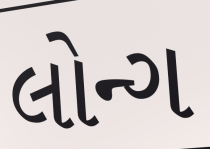
લોન્ગ